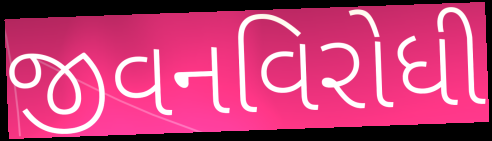
જીવનવિરોધી